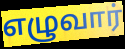
எழுவார்